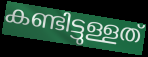
കണ്ടിട്ടുള്ളത്